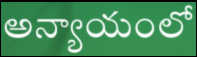
అన్యాయంలో